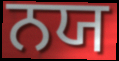
ਨਯ